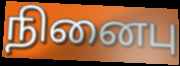
நினைபு